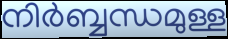
നിർബ്ബന്ധമുള്ള